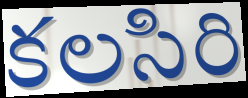
కలసిరి